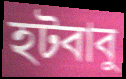
হটবাবু